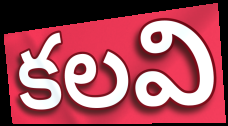
కలవి